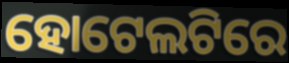
ହୋଟେଲଟିରେ